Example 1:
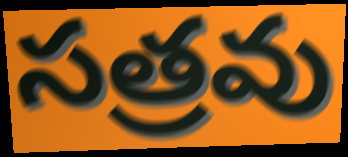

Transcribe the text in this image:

సత్రవు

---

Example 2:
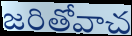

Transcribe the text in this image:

జరితోవాచ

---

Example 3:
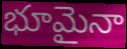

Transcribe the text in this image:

భూమైనా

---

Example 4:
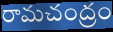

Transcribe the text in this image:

రామచంద్రం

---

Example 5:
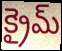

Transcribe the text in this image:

క్రైమ్